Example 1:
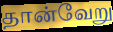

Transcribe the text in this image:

தான்வேறு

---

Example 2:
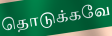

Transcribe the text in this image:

தொடுக்கவே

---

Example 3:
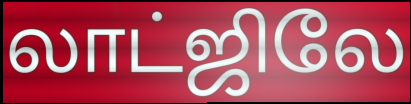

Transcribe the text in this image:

லாட்ஜிலே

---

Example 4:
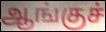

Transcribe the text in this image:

ஆங்குச்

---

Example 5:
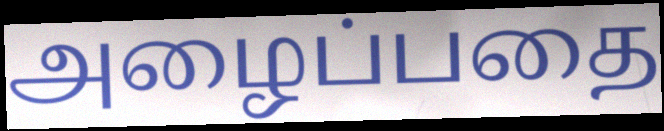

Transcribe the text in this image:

அழைப்பதை